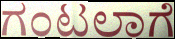
ಗಂಟಲಾಗೆ